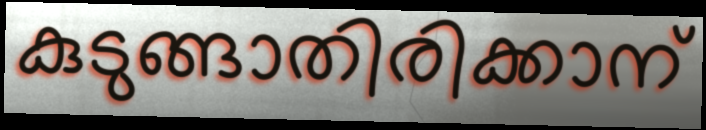
കുടുങ്ങാതിരിക്കാന്